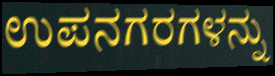
ಉಪನಗರಗಳನ್ನು